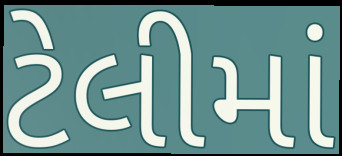
ટેલીમાં